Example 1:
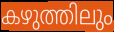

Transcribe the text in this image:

കഴുത്തിലും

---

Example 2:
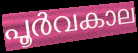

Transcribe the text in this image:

പൂർവകാല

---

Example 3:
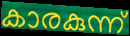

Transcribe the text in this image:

കാരകുന്ന്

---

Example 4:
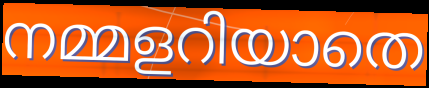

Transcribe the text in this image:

നമ്മളറിയാതെ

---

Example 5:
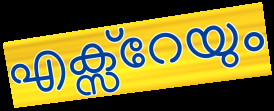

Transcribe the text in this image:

എക്സ്റേയും